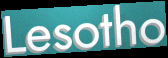
Lesotho